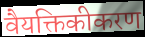
वैयक्तिकीकरण